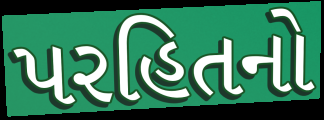
પરહિતનો